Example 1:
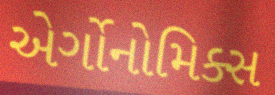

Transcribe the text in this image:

એર્ગોનોમિક્સ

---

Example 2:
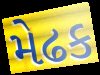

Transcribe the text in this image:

મેઢક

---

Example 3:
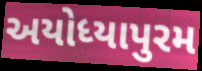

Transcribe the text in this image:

અયોધ્યાપુરમ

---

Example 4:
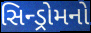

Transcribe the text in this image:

સિન્ડ્રોમનો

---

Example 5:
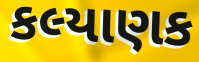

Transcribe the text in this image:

કલ્યાણક